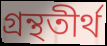
গ্রন্থতীর্থ